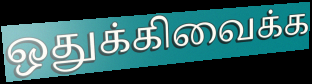
ஒதுக்கிவைக்க